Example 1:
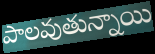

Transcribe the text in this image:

పాలవుతున్నాయి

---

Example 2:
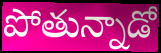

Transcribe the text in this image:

పోతున్నాడో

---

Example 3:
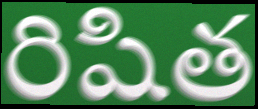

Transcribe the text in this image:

రిషిత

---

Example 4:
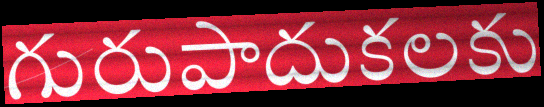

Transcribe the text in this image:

గురుపాదుకలకు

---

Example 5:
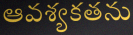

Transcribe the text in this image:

ఆవశ్యకతను